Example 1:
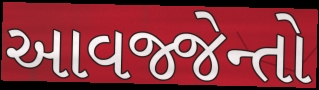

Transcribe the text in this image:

આવજ્જેન્તો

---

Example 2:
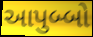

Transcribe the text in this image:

આપુબ્બો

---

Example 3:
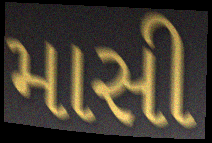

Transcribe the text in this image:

માસી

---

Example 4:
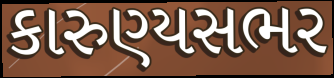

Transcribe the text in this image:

કારુણ્યસભર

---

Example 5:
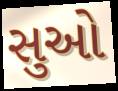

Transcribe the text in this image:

સુઓ